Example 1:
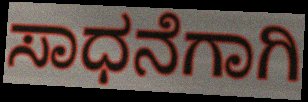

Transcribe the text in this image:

ಸಾಧನೆಗಾಗಿ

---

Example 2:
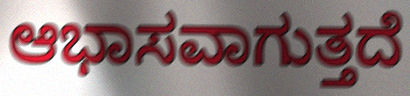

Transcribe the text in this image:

ಆಭಾಸವಾಗುತ್ತದೆ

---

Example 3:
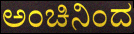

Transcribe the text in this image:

ಅಂಚಿನಿಂದ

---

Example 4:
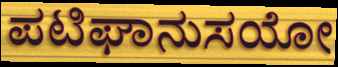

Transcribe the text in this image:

ಪಟಿಘಾನುಸಯೋ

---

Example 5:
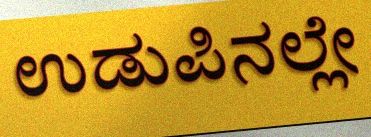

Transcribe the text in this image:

ಉಡುಪಿನಲ್ಲೇ